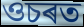
ওচৰত